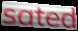
sated